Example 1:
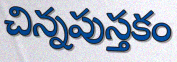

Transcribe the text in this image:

చిన్నపుస్తకం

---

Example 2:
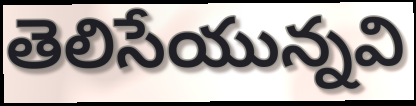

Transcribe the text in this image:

తెలిసేయున్నవి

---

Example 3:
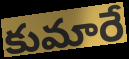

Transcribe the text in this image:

కుమారే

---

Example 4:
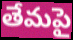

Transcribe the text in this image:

తేమపై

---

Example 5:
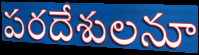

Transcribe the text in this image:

పరదేశులనూ